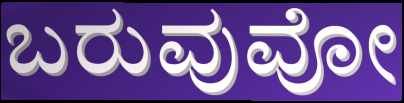
ಬರುವುವೋ